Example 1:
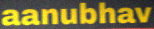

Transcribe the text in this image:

aanubhav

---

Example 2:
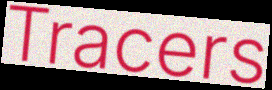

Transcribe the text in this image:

Tracers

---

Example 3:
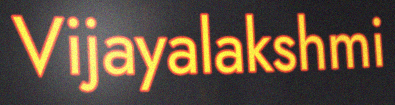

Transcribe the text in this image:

Vijayalakshmi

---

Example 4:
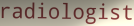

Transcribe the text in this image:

radiologist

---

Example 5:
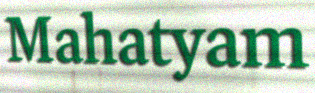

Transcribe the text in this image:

Mahatyam